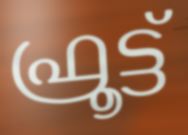
ഫ്രൂട്ട്